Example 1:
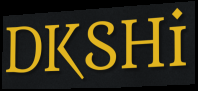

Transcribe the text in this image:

DKSHi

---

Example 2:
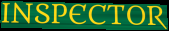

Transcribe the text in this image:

INSPECTOR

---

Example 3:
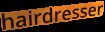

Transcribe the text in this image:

hairdresser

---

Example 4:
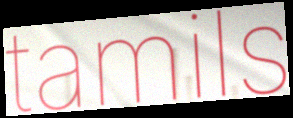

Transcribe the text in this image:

tamils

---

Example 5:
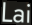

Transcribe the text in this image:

Lai